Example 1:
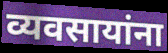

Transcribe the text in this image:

व्यवसायांना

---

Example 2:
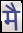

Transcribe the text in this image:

मै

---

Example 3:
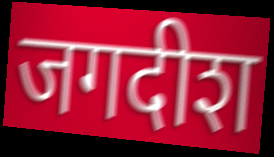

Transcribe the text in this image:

जगदीश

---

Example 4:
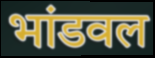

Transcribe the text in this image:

भांडवल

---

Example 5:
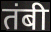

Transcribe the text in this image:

तंबी